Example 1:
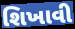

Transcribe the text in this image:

શિખાવી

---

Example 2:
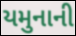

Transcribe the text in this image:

યમુનાની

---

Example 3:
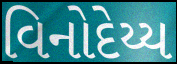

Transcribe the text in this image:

વિનોદેય્ય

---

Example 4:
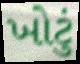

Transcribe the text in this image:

ખોટું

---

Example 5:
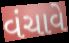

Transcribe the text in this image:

વંચાવે